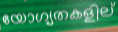
യോഗ്യതകളില്